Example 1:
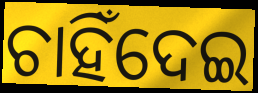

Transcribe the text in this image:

ଚାହିଁଦେଇ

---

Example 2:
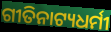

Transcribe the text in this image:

ଗୀତିନାଟ୍ୟଧର୍ମୀ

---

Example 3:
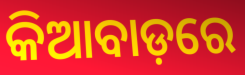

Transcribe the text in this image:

କିଆବାଡ଼ରେ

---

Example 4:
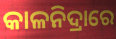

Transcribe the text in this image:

କାଳନିଦ୍ରାରେ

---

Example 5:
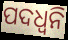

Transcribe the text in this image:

ପଦଧ୍ଵନି